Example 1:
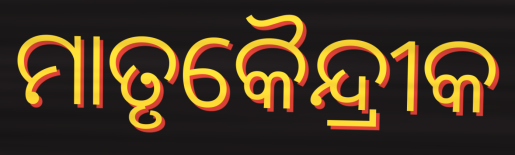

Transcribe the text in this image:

ମାତୃକୈନ୍ଦ୍ରୀକ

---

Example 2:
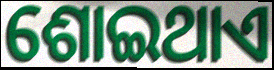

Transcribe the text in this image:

ଶୋଇଥାଏ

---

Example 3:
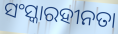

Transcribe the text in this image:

ସଂସ୍କାରହୀନତା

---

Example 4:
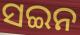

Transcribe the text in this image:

ସଇନ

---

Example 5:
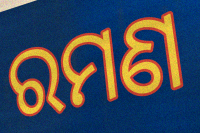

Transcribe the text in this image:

ରମଣ